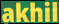
akhil